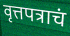
वृत्तपत्राचं